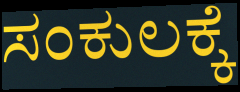
ಸಂಕುಲಕ್ಕೆ